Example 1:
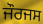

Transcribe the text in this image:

ਜੌਰਜਸ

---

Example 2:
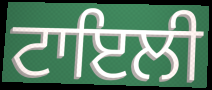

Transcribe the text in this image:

ਟਾਇਲੀ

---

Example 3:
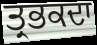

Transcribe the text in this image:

ਤ੍ਰਭਕਦਾ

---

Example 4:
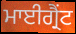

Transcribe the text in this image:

ਮਾਈਗ੍ਰੈਂਟ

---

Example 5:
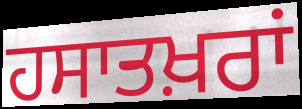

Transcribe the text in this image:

ਹਸਾਤਖ਼ਰਾਂ